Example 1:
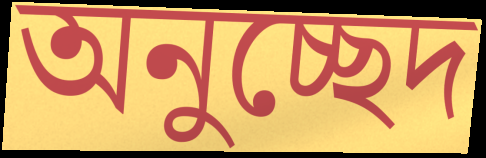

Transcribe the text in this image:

অনুচ্ছেদ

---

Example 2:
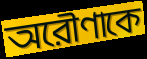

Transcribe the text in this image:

অরৌণাকে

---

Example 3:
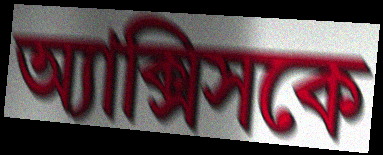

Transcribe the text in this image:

অ্যাক্সিসকে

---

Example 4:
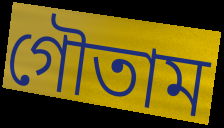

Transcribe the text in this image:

গৌতাম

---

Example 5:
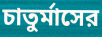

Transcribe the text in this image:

চাতুর্মাসের